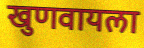
खुणवायला